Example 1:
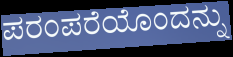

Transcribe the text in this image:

ಪರಂಪರೆಯೊಂದನ್ನು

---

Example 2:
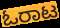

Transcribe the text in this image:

ಓರಾಟ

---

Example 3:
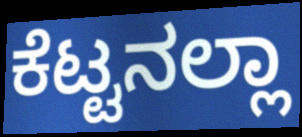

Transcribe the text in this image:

ಕೆಟ್ಟನಲ್ಲಾ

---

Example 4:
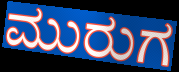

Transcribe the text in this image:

ಮುರುಗ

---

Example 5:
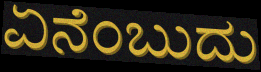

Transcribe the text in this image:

ಏನೆಂಬುದು